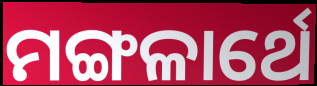
ମଙ୍ଗଳାର୍ଥେ